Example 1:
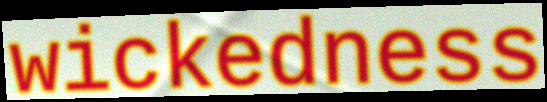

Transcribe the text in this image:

wickedness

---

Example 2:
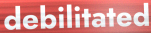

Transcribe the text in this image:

debilitated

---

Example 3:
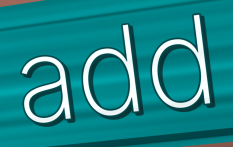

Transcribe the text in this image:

add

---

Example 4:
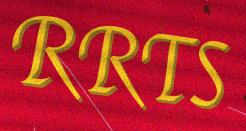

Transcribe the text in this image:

RRTS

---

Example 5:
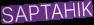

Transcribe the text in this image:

SAPTAHIK